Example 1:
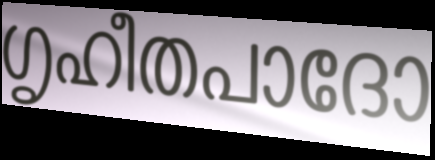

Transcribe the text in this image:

ഗൃഹീതപാദോ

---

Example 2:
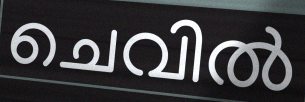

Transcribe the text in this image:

ചെവിൽ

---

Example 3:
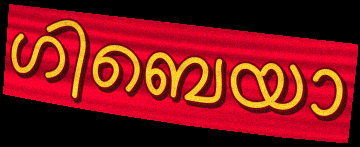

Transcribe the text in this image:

ഗിബെയാ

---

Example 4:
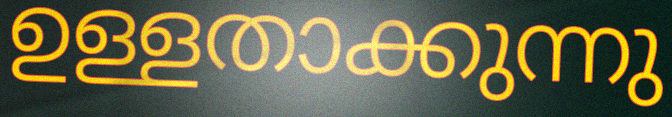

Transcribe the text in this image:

ഉള്ളതാക്കുന്നു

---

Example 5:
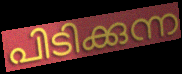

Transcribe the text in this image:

പിടിക്കുന്ന